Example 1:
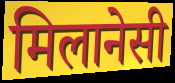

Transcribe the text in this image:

मिलानेसी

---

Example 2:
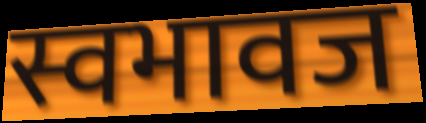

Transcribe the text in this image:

स्वभावज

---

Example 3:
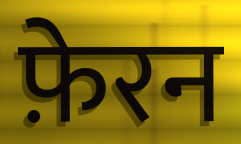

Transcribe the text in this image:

फ़ेरन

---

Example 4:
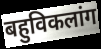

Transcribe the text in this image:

बहुविकलांग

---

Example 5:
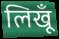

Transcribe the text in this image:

लिखूँ